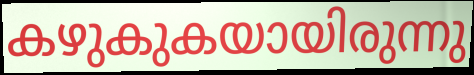
കഴുകുകയായിരുന്നു